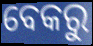
ବେକରୁ